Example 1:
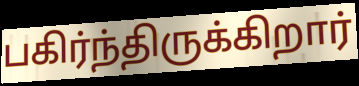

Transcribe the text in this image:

பகிர்ந்திருக்கிறார்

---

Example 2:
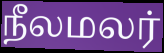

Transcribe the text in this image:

நீலமலர்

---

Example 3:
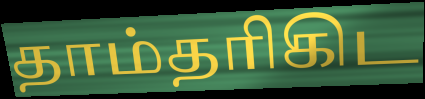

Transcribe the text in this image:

தாம்தரிகிட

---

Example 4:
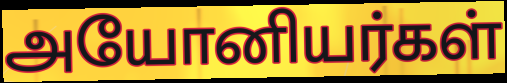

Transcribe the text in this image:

அயோனியர்கள்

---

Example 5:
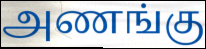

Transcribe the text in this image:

அணங்கு